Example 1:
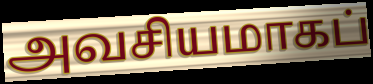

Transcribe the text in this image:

அவசியமாகப்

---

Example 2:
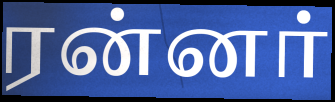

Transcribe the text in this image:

ரன்னர்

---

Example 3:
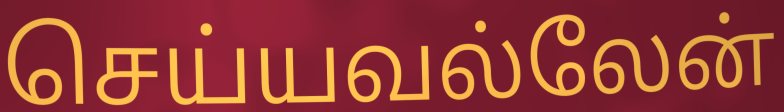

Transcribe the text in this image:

செய்யவல்லேன்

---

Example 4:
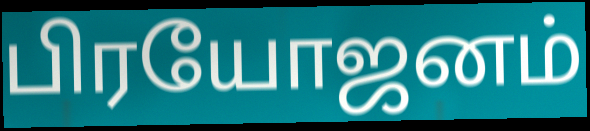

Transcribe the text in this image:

பிரயோஜனம்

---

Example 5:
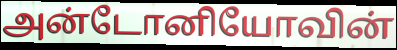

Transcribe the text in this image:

அன்டோனியோவின்